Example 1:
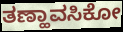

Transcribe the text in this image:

ತಣ್ಹಾವಸಿಕೋ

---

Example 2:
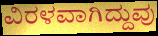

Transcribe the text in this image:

ವಿರಳವಾಗಿದ್ದುವು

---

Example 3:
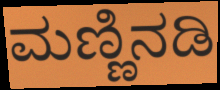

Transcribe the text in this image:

ಮಣ್ಣಿನಡಿ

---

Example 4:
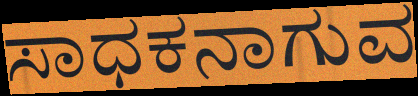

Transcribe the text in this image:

ಸಾಧಕನಾಗುವ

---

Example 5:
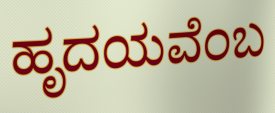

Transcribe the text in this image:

ಹೃದಯವೆಂಬ